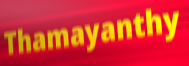
Thamayanthy